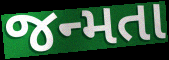
જન્મતા